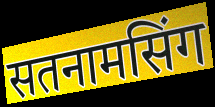
सतनामसिंग